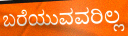
ಬರೆಯುವವರಿಲ್ಲ